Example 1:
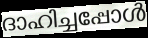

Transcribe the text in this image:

ദാഹിച്ചപ്പോൾ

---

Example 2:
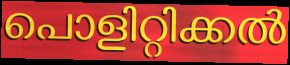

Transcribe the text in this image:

പൊളിറ്റിക്കൽ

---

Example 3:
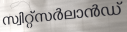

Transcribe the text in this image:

സ്വിറ്റ്സർലാൻഡ്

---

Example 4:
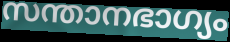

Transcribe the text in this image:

സന്താനഭാഗ്യം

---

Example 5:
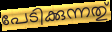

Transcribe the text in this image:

പേടിക്കുന്നതു്